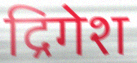
द्रिगेश